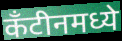
कँटीनमध्ये